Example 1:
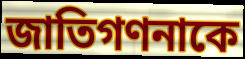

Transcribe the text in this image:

জাতিগণনাকে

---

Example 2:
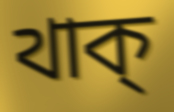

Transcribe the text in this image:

থাক্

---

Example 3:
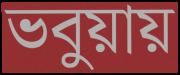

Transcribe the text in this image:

ভবুয়ায়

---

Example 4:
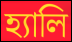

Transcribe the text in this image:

হ্যালি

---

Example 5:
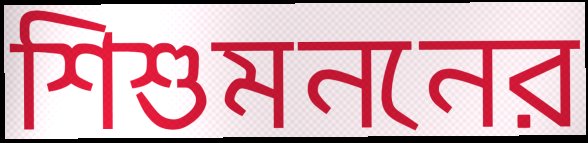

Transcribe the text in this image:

শিশুমননের